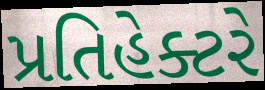
પ્રતિહેક્ટરે